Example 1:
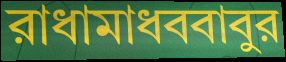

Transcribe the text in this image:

রাধামাধববাবুর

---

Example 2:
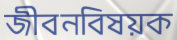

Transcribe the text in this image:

জীবনবিষয়ক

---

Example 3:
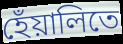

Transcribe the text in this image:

হেঁয়ালিতে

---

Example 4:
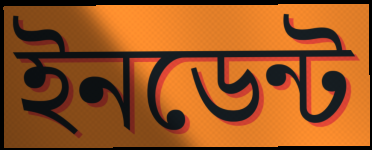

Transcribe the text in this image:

ইনডেন্ট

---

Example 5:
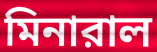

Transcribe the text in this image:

মিনারাল